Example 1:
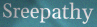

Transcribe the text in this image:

Sreepathy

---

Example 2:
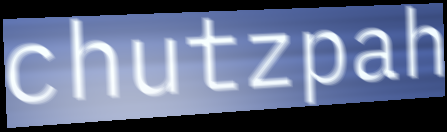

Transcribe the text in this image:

chutzpah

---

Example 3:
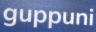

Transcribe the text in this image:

guppuni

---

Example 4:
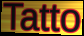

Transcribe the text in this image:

Tatto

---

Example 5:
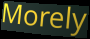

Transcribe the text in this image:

Morely